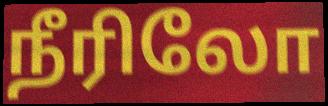
நீரிலோ